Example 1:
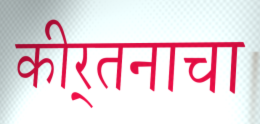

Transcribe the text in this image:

कीर्तनाचा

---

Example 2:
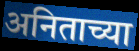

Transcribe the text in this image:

अनिताच्या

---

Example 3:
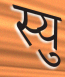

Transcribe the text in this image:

स्यु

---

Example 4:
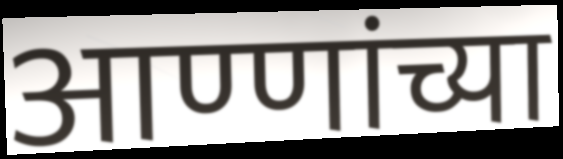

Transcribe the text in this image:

आण्णांच्या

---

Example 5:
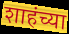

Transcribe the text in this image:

शाहंच्या